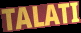
TALATI